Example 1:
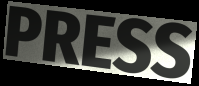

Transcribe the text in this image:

PRESS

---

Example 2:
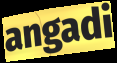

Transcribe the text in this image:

angadi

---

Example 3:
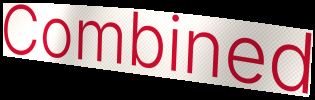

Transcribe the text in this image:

Combined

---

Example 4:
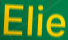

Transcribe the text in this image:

Elie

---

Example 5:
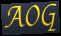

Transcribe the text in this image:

AOG